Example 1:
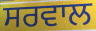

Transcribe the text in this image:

ਸਰਵਾਲ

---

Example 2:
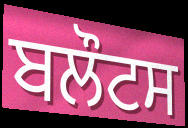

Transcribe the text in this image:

ਬਲੌਟਸ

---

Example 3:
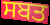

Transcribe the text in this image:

ਸਬਤ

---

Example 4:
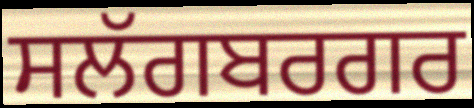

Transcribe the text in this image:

ਸਲੱਗਬਰਗਰ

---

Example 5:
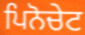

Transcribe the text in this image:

ਪਿਨੋਚੇਟ